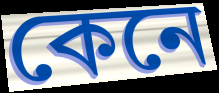
কেনে